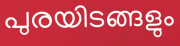
പുരയിടങ്ങളും